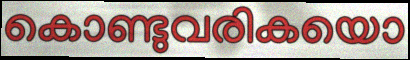
കൊണ്ടുവരികയൊ